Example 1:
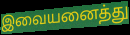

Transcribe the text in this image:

இவையனைத்து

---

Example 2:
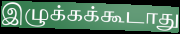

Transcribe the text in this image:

இழுக்கக்கூடாது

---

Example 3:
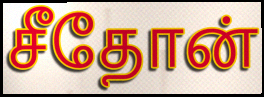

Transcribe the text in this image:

சீதோன்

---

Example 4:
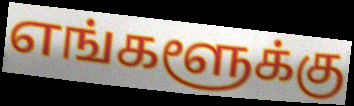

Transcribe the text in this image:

எங்களூக்கு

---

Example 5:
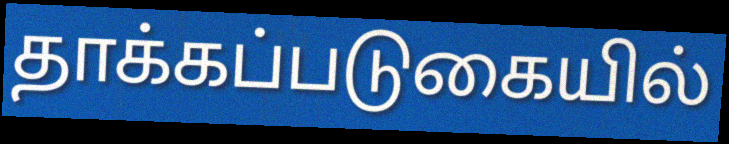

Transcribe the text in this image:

தாக்கப்படுகையில்